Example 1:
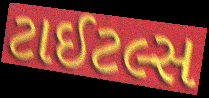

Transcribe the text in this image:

ટાઈટલ્સ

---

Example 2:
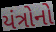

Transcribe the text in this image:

યંત્રોનો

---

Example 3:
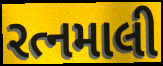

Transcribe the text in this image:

રત્નમાલી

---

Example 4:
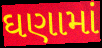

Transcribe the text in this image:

ઘણામાં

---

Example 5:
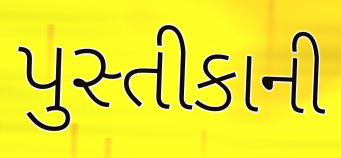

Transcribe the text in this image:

પુસ્તીકાની